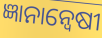
ଜ୍ଞାନାନ୍ୱେଷୀ